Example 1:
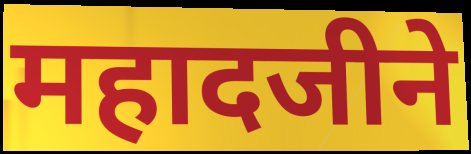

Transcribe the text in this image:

महादजीने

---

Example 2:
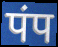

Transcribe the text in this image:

पंप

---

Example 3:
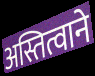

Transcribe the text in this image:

अस्तित्वाने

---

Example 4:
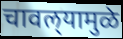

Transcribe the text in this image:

चावल्यामुळे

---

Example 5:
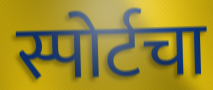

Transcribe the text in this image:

स्पोर्टचा